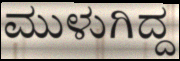
ಮುಳುಗಿದ್ದ